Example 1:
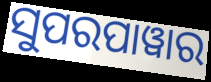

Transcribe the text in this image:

ସୁପରପାୱାର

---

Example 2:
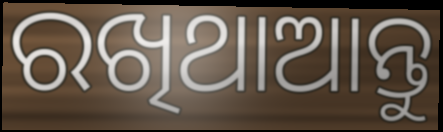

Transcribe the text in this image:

ରଖିଥାଆନ୍ତୁ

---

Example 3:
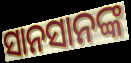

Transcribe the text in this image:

ସାନସାନଙ୍କ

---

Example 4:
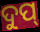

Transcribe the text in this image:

ଦୁପ୍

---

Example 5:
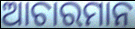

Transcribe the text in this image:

ଆଚାରମାନ